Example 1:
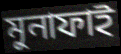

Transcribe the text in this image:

মুনাফাই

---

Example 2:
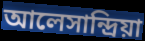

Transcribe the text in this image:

আলেসান্দ্রিয়া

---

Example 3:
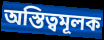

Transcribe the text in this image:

অস্তিত্বমূলক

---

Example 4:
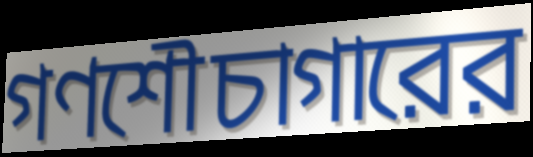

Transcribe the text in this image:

গণশৌচাগারের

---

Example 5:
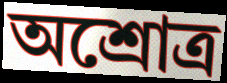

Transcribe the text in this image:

অশ্রোত্র